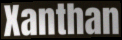
Xanthan